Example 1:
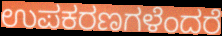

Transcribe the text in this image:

ಉಪಕರಣಗಳೆಂದರೆ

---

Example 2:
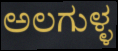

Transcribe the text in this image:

ಅಲಗುಳ್ಳ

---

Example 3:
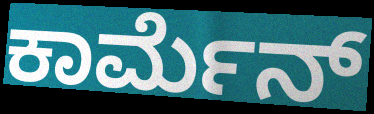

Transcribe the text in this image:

ಕಾರ್ಮೆನ್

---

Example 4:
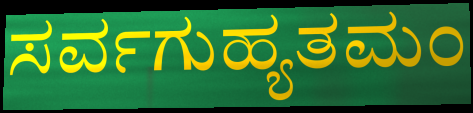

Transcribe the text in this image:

ಸರ್ವಗುಹ್ಯತಮಂ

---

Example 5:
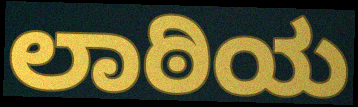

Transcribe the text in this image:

ಲಾಠಿಯ